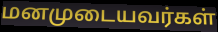
மனமுடையவர்கள்